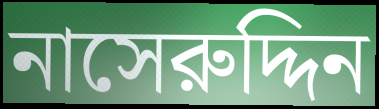
নাসেরুদ্দিন